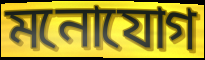
মনোযোগ